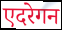
एदरेगन